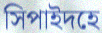
সিপাইদহে